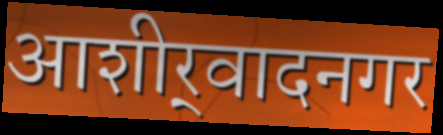
आशीर्वादनगर